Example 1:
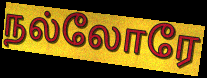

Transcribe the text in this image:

நல்லோரே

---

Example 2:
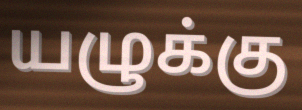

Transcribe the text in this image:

யழுக்கு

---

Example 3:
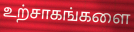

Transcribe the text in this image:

உற்சாகங்களை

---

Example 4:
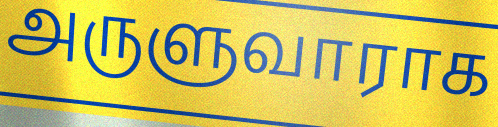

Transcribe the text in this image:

அருளுவாராக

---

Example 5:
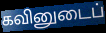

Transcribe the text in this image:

கவினுடைப்